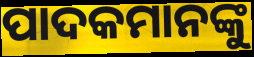
ପାଦକମାନଙ୍କୁ